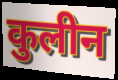
कुलीन